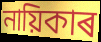
নায়িকাৰ